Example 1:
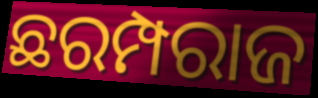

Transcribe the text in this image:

ଛରମ୍ପରାଜ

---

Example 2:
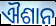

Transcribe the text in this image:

ଐଶାନ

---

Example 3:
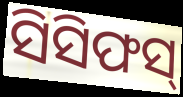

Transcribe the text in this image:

ସିସିଫସ୍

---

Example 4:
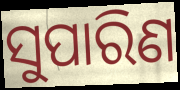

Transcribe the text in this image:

ସୁପାରିଣ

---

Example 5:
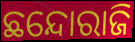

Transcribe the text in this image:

ଛନ୍ଦୋରାଜି